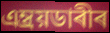
এম্ব্ৰয়ডাৰীৰ